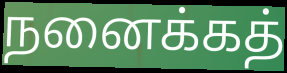
நனைக்கத்